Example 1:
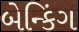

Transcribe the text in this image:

બેન્કિંગ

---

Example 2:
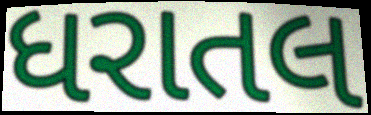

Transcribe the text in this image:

ધરાતલ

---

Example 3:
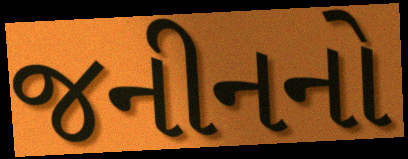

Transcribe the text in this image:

જનીનનો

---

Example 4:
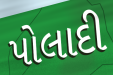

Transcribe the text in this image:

પોલાદી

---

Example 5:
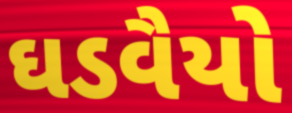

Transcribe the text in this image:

ઘડવૈયો